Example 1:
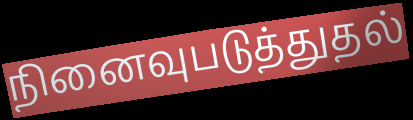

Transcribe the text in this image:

நினைவுபடுத்துதல்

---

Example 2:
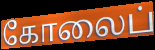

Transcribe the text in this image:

கோலைப்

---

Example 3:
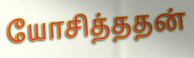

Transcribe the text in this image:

யோசித்ததன்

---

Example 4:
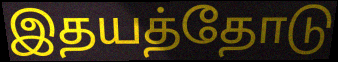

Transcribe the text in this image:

இதயத்தோடு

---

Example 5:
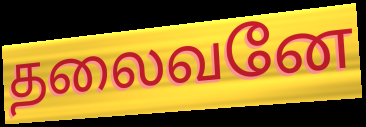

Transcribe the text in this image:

தலைவனே